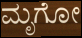
ಮೃಗೋ